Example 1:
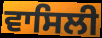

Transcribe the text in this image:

ਵਾਸਿਲੀ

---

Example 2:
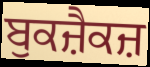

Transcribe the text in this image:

ਬੁਕਜ਼ੈਕਜ਼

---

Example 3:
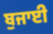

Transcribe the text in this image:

ਬੁਜਾਈ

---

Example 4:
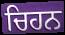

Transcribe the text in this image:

ਚਿਹਨ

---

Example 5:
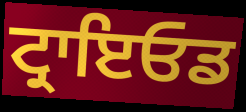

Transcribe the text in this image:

ਟ੍ਰਾਇਓਡ